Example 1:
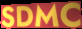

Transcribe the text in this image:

SDMC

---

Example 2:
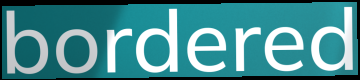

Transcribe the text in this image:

bordered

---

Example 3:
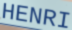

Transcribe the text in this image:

HENRI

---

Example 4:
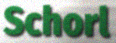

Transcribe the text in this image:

Schorl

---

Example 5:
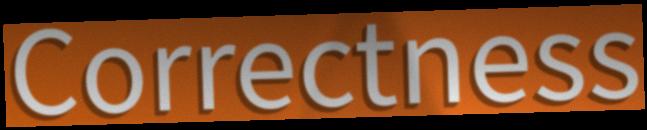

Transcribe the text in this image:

Correctness